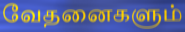
வேதனைகளும்